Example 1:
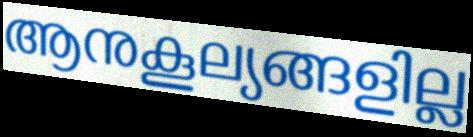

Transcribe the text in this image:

ആനുകൂല്യങ്ങളില്ല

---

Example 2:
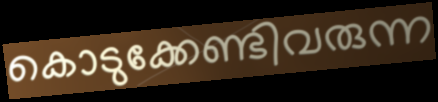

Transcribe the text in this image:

കൊടുക്കേണ്ടിവരുന്ന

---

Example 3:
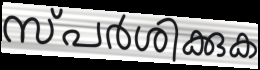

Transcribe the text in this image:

സ്പർശിക്കുക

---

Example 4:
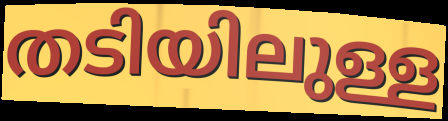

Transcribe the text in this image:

തടിയിലുള്ള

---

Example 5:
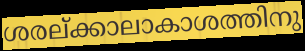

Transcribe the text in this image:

ശരല്ക്കാലാകാശത്തിനു